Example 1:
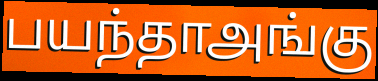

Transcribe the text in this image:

பயந்தாஅங்கு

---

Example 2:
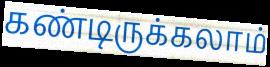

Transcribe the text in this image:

கண்டிருக்கலாம்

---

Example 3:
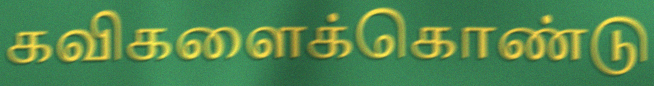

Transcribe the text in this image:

கவிகளைக்கொண்டு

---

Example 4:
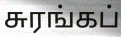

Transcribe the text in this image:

சுரங்கப்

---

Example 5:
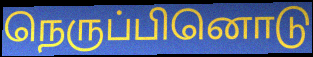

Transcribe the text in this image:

நெருப்பினொடு